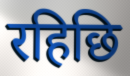
रहिछि